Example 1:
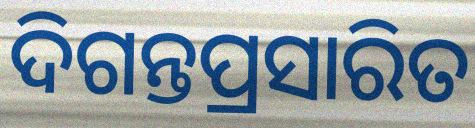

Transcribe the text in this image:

ଦିଗନ୍ତପ୍ରସାରିତ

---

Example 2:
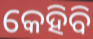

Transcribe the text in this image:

କେହିବି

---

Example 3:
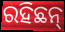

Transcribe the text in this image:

ରହିଛନ୍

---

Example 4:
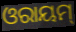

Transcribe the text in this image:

ଓରାୟମ୍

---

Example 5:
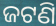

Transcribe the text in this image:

ଜଟଣି